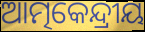
ଆତ୍ମକେନ୍ଦ୍ରୀୟ